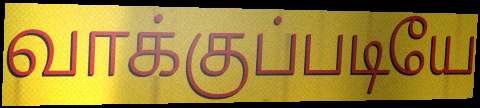
வாக்குப்படியே